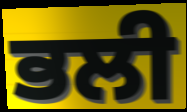
ਭਲੀ